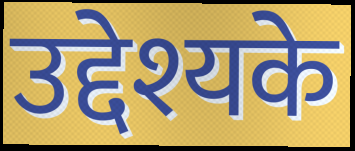
उद्देश्यके